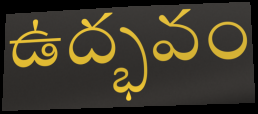
ఉద్భవం